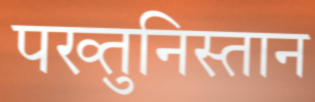
पख्तुनिस्तान